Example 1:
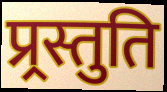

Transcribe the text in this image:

प्र्रस्तुति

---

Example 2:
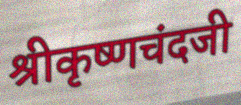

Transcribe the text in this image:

श्रीकृष्णचंदजी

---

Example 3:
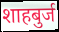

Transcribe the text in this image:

शाहबुर्ज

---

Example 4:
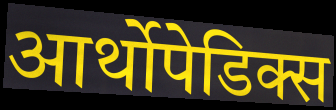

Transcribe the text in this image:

आर्थोपेडिक्स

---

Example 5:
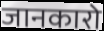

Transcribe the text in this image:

जानकारो